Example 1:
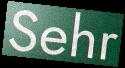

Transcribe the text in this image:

Sehr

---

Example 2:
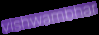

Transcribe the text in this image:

vishwambhar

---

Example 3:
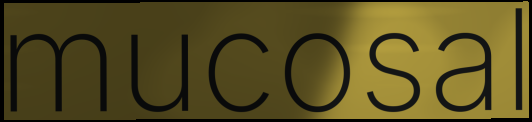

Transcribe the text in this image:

mucosal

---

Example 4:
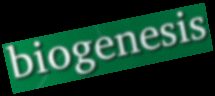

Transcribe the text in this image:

biogenesis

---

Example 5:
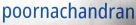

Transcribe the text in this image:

poornachandran